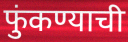
फुंकण्याची